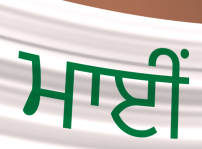
ਮਾਈਂ